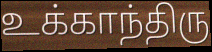
உக்காந்திரு